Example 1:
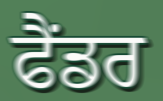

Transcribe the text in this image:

ਫੈਂਡਰ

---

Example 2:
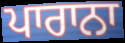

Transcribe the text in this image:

ਪਾਰਾਨਾ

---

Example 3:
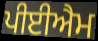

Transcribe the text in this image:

ਪੀਈਐਮ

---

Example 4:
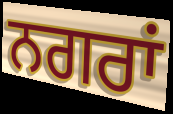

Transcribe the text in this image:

ਨਗਰਾਂ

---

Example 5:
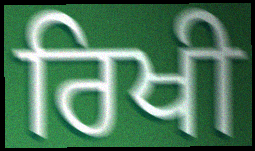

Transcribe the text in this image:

ਰਿਖੀ